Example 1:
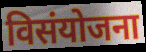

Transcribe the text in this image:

विसंयोजना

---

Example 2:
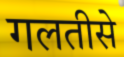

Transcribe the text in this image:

गलतीसे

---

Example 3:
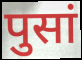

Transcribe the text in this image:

पुसां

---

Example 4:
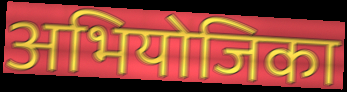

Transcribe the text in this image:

अभियोजिका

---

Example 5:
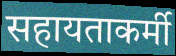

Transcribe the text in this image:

सहायताकर्मी